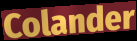
Colander